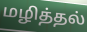
மழித்தல்